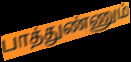
பாத்துண்ணும்